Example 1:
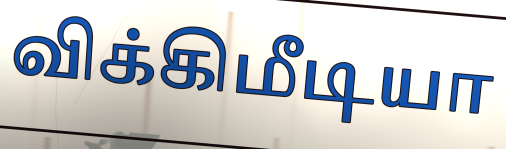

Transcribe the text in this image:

விக்கிமீடியா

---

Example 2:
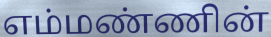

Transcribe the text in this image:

எம்மண்ணின்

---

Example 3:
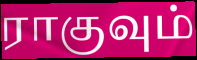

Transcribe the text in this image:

ராகுவும்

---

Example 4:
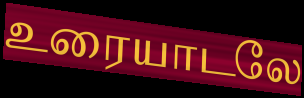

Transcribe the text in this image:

உரையாடலே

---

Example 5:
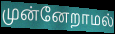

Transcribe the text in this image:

முன்னேறாமல்